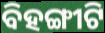
ବିହଙ୍ଗୀଟି